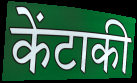
केंटाकी